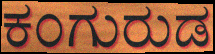
ಕಂಗುರುಡ